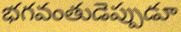
భగవంతుడెప్పుడూ